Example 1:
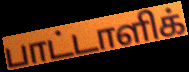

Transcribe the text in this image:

பாட்டாளிக்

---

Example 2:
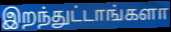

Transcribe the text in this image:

இறந்துட்டாங்களா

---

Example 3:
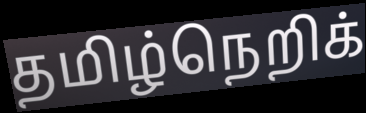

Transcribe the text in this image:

தமிழ்நெறிக்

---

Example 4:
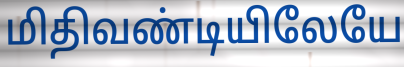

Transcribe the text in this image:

மிதிவண்டியிலேயே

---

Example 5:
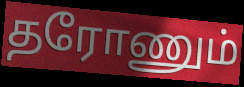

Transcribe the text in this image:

தரோணும்